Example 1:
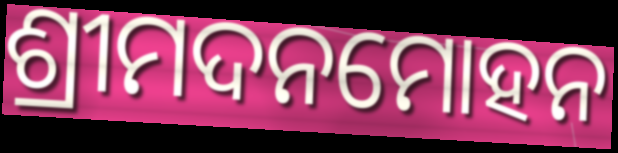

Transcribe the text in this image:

ଶ୍ରୀମଦନମୋହନ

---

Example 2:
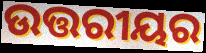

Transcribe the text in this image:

ଉତ୍ତରୀୟର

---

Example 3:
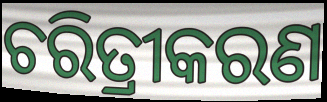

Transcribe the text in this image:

ଚରିତ୍ରୀକରଣ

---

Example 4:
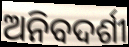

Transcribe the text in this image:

ଅନିବଦର୍ଶୀ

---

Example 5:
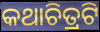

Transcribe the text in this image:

କଥାଚିତ୍ରଟି